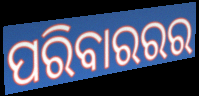
ପରିବାରରର